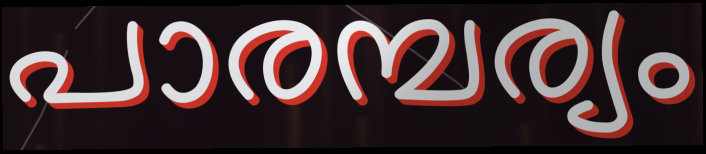
പാരമ്പര്യം